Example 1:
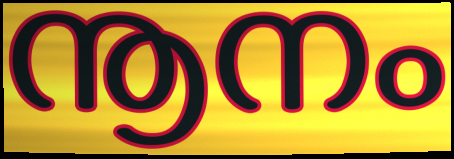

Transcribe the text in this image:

നൂനം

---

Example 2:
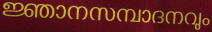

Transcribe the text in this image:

ജ്ഞാനസമ്പാദനവും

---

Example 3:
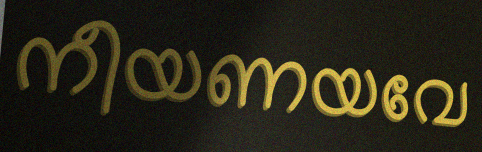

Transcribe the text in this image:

നീയണയവേ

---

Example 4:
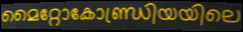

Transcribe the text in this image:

മൈറ്റോകോണ്ഡ്രിയയിലെ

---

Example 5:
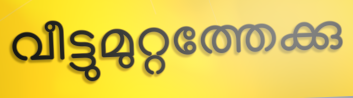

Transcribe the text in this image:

വീട്ടുമുറ്റത്തേക്കു